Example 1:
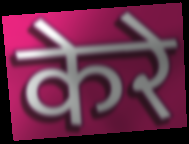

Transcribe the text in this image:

केरे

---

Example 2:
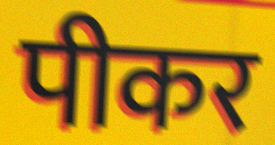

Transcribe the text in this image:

पीकर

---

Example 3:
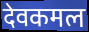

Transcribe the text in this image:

देवकमल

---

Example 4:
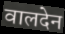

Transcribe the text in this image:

वालदेन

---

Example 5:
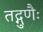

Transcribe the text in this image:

तद्गुणैः